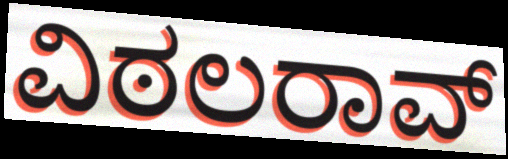
ವಿಠಲರಾವ್